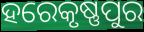
ହରେକୃଷ୍ଣପୁର